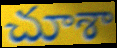
చూశా